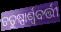
ଚତୁଷ୍ପାର୍ଶ୍ୱବର୍ତ୍ତୀ